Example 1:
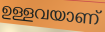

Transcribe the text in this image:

ഉള്ളവയാണ്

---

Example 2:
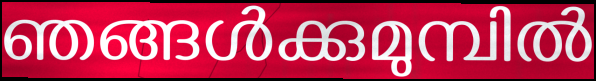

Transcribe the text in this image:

ഞങ്ങൾക്കുമുമ്പിൽ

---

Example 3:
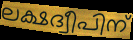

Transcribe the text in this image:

ലക്ഷദ്വീപിന്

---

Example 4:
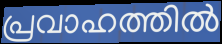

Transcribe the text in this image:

പ്രവാഹത്തിൽ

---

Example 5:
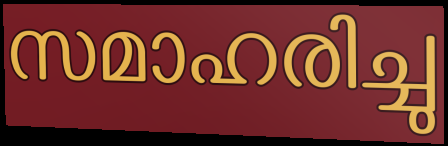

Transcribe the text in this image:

സമാഹരിച്ചു